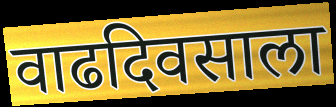
वाढदिवसाला